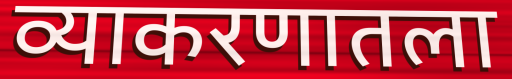
व्याकरणातला